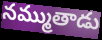
నమ్ముతాడు